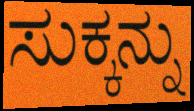
ಸುಕ್ಕನ್ನು